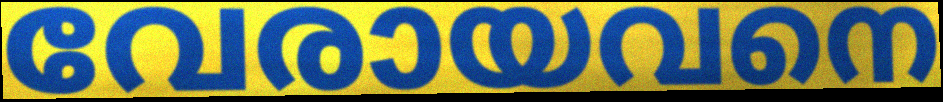
വേരായവനെ